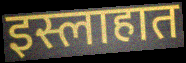
इस्लाहात